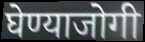
घेण्याजोगी